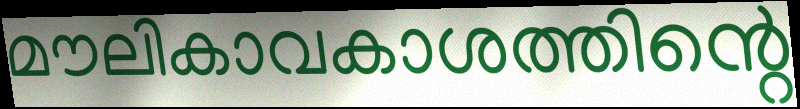
മൗലികാവകാശത്തിന്റെ